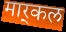
मार्कल